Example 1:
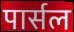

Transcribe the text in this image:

पार्सल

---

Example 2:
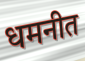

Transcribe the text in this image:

धमनीत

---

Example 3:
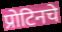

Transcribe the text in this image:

प्रोटिनचे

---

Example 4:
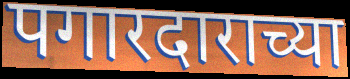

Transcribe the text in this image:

पगारदाराच्या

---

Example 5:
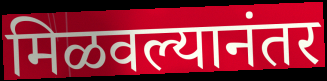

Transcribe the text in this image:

मिळवल्यानंतर